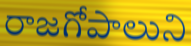
రాజగోపాలుని